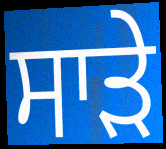
ਸਾੜੇ